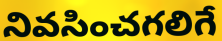
నివసించగలిగే